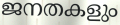
ജനതകളും